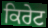
ਕਿਰੇਟ